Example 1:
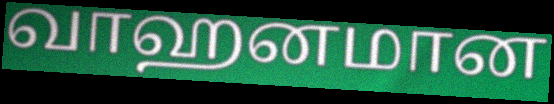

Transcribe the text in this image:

வாஹனமான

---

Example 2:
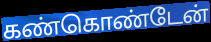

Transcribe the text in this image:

கண்கொண்டேன்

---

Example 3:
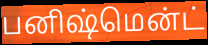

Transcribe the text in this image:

பனிஷ்மென்ட்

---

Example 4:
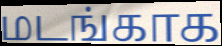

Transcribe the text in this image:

மடங்காக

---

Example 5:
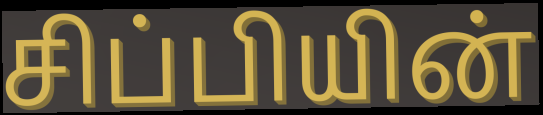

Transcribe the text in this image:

சிப்பியின்